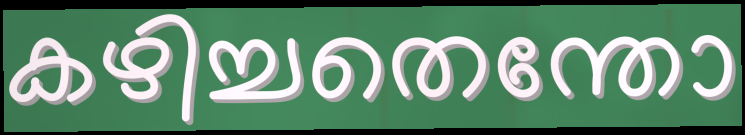
കഴിച്ചതെന്തോ